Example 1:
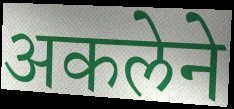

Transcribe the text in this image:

अकलेने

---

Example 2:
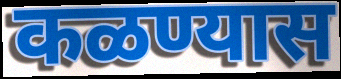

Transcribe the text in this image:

कळण्यास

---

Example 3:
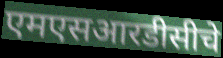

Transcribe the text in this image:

एमएसआरडीसीचे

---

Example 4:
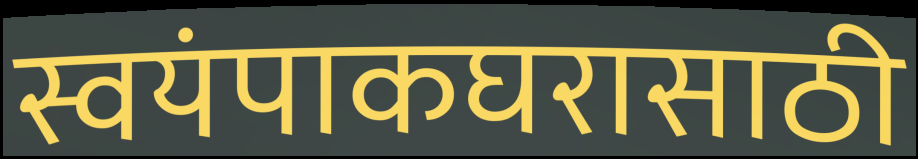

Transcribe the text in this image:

स्वयंपाकघरासाठी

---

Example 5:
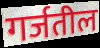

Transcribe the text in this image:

गर्जतील